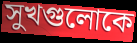
সুখগুলোকে